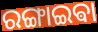
ରଙ୍ଗାଇଵା